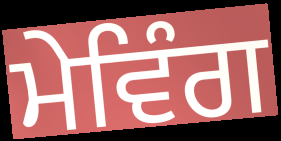
ਮੇਵਿੰਗ